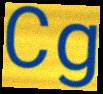
Cg